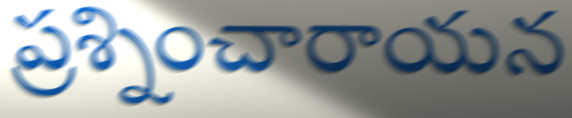
ప్రశ్నించారాయన